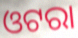
ଓଟରା